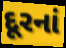
દૂરનાં